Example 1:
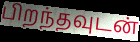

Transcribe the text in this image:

பிறந்தவுடன்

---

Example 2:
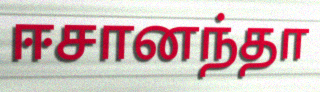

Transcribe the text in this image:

ஈசானந்தா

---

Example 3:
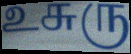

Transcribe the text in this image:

உசுரு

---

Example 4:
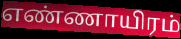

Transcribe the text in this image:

எண்ணாயிரம்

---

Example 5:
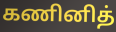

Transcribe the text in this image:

கணினித்